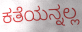
ಕತೆಯನ್ನಲ್ಲ